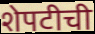
शेपटीची